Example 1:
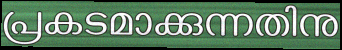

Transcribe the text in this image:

പ്രകടമാക്കുന്നതിനു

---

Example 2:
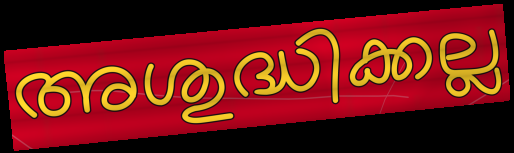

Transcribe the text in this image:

അശുദ്ധിക്കല്ല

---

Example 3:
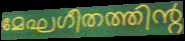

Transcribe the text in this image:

മേഘഗീതത്തിന്റ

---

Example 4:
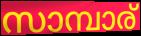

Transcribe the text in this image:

സാമ്പാര്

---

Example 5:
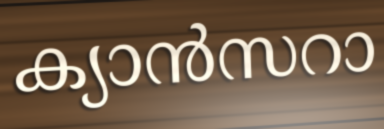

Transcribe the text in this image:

ക്യാൻസറാ